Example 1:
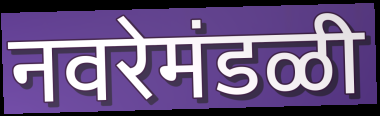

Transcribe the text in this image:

नवरेमंडळी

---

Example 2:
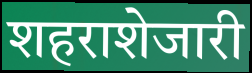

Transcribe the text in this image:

शहराशेजारी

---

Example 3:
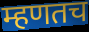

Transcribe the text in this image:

म्हणतच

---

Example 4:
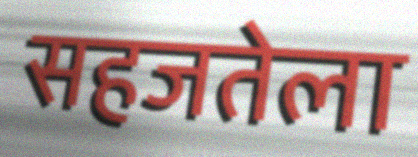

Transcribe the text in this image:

सहजतेला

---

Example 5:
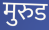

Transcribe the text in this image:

मुरुड